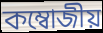
কম্বোজীয়